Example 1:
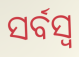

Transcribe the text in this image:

ସର୍ବସ୍ୱ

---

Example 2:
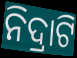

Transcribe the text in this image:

ନିଦ୍ରାଟି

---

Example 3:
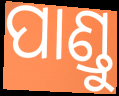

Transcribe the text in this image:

ପାଣ୍ଡୁ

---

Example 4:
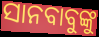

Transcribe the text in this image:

ସାନବାବୁଙ୍କୁ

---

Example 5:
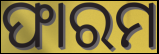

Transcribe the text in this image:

ଫାରମ